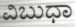
ವಿಬುಧಾ